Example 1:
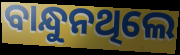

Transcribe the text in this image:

ବାନ୍ଧୁନଥିଲେ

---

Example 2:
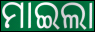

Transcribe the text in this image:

ମାଇଲା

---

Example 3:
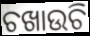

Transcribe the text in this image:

ଚଖାଉଚି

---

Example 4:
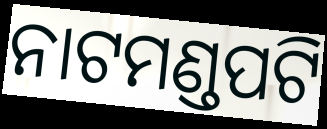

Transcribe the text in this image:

ନାଟମଣ୍ଡପଟି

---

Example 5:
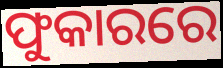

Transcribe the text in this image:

ଫୁକାରରେ